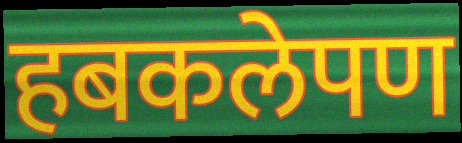
हबकलेपण